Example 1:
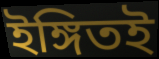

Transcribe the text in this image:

ইঙ্গিতই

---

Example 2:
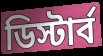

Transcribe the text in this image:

ডিস্টার্ব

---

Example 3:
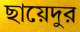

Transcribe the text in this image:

ছায়েদুর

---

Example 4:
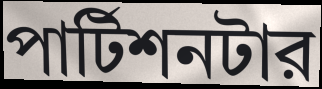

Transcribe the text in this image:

পার্টিশনটার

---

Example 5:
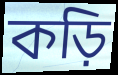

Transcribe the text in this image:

কড়ি